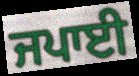
ਜਪਾਈ